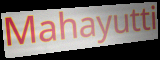
Mahayutti